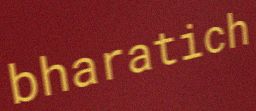
bharatich